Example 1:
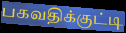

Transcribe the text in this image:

பகவதிக்குட்டி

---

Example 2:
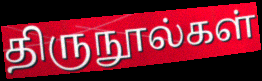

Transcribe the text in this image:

திருநூல்கள்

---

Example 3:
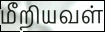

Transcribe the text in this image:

மீறியவள்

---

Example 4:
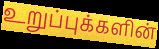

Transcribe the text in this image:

உறுப்புக்களின்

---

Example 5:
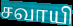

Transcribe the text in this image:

சவாயி